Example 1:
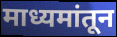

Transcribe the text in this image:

माध्यमांतून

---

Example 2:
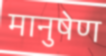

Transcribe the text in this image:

मानुषेण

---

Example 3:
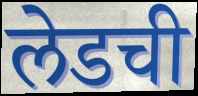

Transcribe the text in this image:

लेडची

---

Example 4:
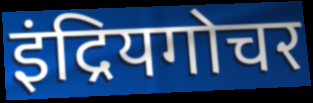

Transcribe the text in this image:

इंद्रियगोचर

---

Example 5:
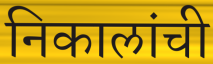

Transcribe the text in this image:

निकालांची